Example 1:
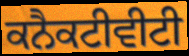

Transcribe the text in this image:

ਕਨੈਕਟੀਵੀਟੀ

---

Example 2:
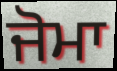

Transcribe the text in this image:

ਜੋਮਾ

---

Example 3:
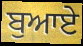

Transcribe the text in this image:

ਬੁਆਏ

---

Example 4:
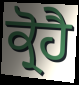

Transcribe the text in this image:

ਕ੍ਰੋਹੈ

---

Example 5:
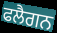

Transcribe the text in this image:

ਫਲੈਗਨ